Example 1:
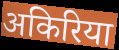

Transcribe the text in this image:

अकिरिया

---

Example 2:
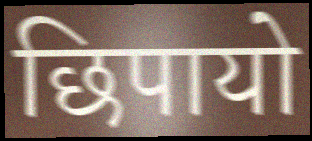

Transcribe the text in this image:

छिपायो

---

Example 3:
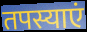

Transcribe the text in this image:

तपस्याएं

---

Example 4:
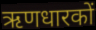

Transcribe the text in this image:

ऋणधारकों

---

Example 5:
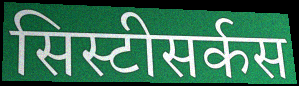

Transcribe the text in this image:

सिस्टीसर्कस